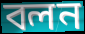
বলন